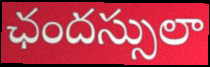
ఛందస్సులా